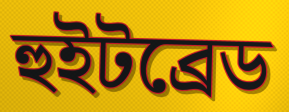
হুইটব্রেড